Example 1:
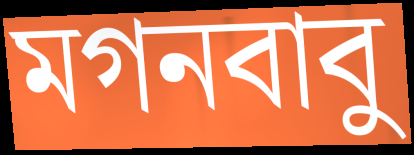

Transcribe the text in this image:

মগনবাবু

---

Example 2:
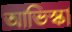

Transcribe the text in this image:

আভিস্কা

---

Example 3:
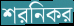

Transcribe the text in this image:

শরনিকর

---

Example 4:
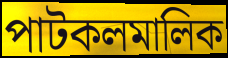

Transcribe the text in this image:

পাটকলমালিক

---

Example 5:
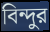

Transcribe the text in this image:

বিন্দুর